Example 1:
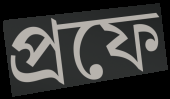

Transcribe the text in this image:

প্রফে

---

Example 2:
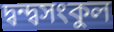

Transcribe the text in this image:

দ্বন্দ্বসংকুল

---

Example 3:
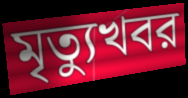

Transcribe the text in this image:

মৃত্যুখবর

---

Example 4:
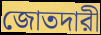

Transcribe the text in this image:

জোতদারী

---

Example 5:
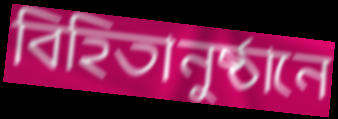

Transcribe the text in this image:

বিহিতানুষ্ঠানে